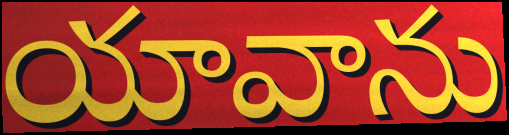
యావాను